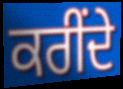
ਕਰੀਂਦੇ